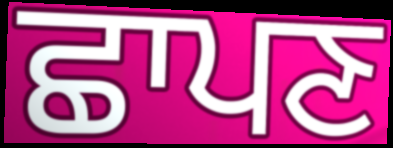
ਛਾਪਣ